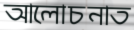
আলোচনাত